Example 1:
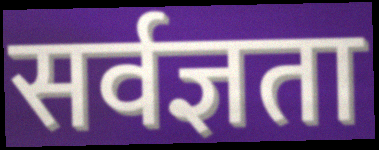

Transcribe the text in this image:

सर्वज्ञता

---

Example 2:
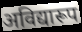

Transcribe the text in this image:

अविद्यारूप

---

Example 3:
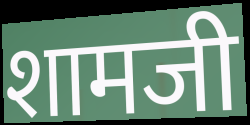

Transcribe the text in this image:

शामजी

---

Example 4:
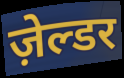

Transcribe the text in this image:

ज़ेल्डर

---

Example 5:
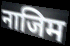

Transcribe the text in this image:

नाजिम